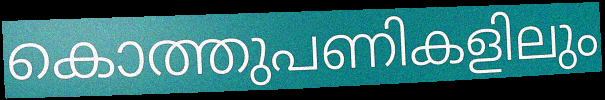
കൊത്തുപണികളിലും